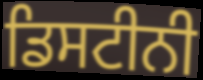
ਡਿਸਟੀਨੀ